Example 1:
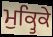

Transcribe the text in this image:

ਮੁਕ੍ਤਿਕੇ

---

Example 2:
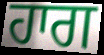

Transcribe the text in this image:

ਹਾਗ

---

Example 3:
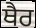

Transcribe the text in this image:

ਥੈਰ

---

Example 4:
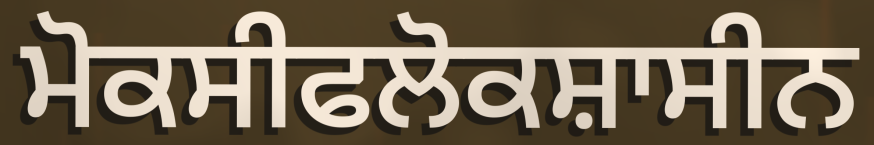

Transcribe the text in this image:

ਮੋਕਸੀਫਲੋਕਸ਼ਾਸੀਨ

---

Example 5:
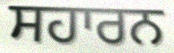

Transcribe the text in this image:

ਸਹਾਰਨ